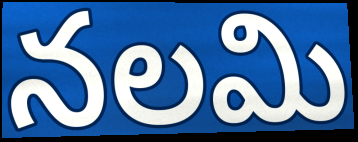
నలమి